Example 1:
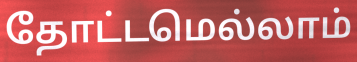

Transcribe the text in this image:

தோட்டமெல்லாம்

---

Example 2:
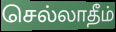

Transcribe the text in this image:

செல்லாதீம்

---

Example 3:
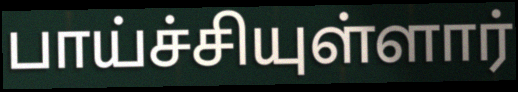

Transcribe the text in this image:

பாய்ச்சியுள்ளார்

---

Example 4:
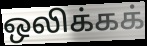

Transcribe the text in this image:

ஒலிக்கக்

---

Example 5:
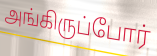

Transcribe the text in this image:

அங்கிருப்போர்